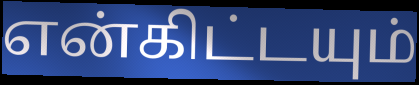
என்கிட்டயும்